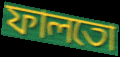
ফালতো